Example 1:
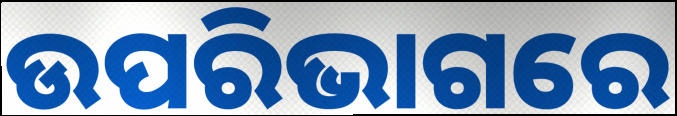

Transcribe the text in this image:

ଉପରିଭାଗରେ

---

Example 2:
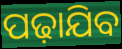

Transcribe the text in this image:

ପଢ଼ାଯିବ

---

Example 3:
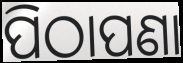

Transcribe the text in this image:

ପିଠାପଣା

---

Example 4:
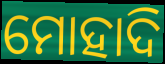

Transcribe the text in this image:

ମୋହାଦି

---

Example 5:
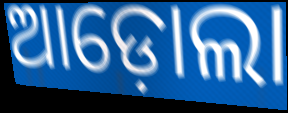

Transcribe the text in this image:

ଆଡ଼ୋଲା